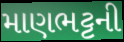
માણભટ્ટની